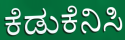
ಕೆಡುಕೆನಿಸಿ